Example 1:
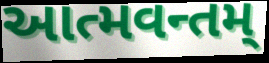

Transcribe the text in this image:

આત્મવન્તમ્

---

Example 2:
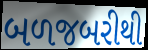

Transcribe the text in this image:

બળજબરીથી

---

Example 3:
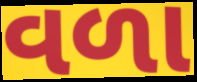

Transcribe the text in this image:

વળા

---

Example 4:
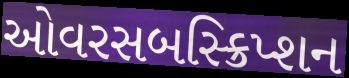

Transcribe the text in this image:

ઓવરસબસ્ક્રિપ્શન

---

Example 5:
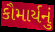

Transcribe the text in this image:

કૌમાર્યનું